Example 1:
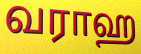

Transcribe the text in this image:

வராஹ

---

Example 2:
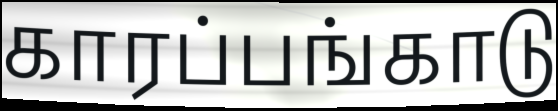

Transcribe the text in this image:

காரப்பங்காடு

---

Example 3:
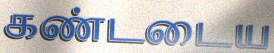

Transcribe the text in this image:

கண்டடைய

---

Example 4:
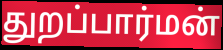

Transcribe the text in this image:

துறப்பார்மன்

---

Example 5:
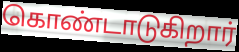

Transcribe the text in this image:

கொண்டாடுகிறார்